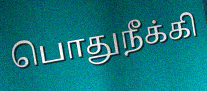
பொதுநீக்கி